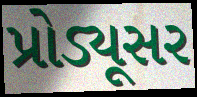
પ્રોડ્યૂસર